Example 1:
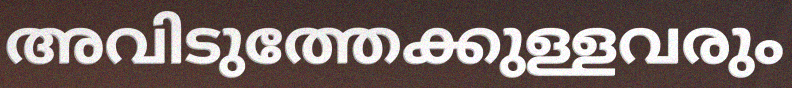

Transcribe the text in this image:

അവിടുത്തേക്കുള്ളവരും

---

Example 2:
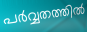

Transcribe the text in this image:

പർവ്വതത്തിൽ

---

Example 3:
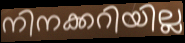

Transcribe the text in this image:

നിനക്കറിയില്ല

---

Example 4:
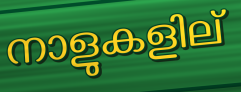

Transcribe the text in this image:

നാളുകളില്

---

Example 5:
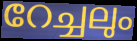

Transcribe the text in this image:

റേച്ചലും